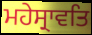
ਮਹੇਸ੍ਰਾਵਤਿ